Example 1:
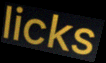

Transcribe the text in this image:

licks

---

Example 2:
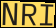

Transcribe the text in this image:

NRI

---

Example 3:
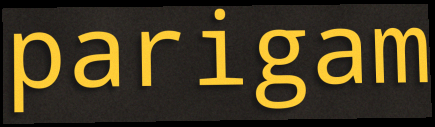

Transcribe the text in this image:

parigam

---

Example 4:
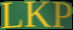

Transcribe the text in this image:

LKP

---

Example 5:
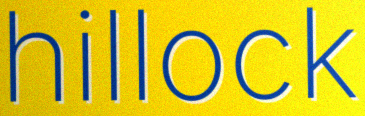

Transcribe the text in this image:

hillock